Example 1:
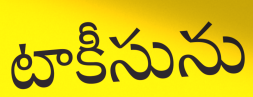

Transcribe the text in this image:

టాకీసును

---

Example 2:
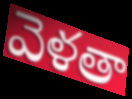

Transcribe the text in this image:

వెళతా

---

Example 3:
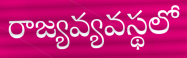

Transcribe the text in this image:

రాజ్యవ్యవస్థలో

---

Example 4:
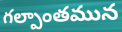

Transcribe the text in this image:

గల్పాంతమున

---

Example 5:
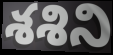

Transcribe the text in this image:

శశిని